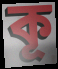
কূ